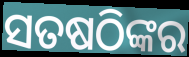
ସତଷଠିଙ୍କର